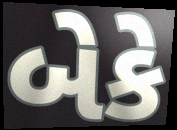
બેકે